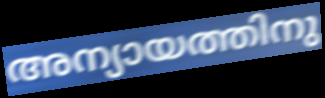
അന്യായത്തിനു